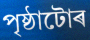
পৃষ্ঠাটোৰ